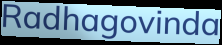
Radhagovinda